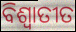
ବିଶ୍ୱାତୀତ